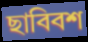
ছাবিবশ